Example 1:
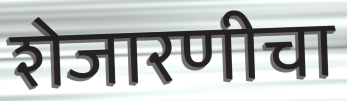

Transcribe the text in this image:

शेजारणीचा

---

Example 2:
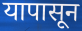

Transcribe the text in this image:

यापासून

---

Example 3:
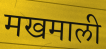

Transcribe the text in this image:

मखमाली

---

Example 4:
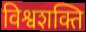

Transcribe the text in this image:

विश्वशक्ति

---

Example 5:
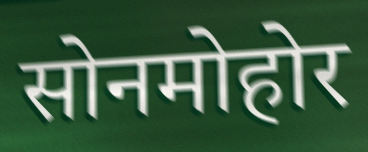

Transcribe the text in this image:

सोनमोहोर